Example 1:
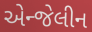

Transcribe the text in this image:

એન્જેલીન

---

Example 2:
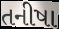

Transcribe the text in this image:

તનીષા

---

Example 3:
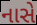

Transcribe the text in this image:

નાસે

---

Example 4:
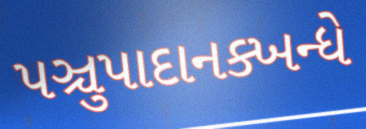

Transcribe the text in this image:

પઞ્ચુપાદાનક્ખન્ધે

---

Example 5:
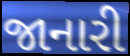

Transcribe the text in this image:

જાનારી